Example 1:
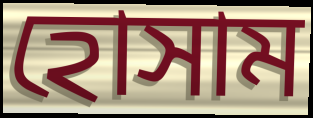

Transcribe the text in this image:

হোসাম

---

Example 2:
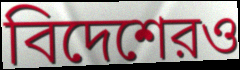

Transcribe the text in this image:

বিদেশেরও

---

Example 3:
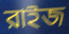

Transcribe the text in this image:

রাইজ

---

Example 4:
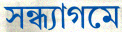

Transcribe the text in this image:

সন্ধ্যাগমে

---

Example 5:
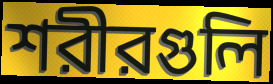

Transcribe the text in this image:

শরীরগুলি